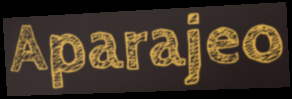
Aparajeo